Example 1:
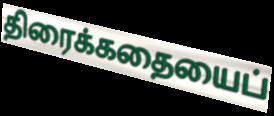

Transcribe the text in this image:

திரைக்கதையைப்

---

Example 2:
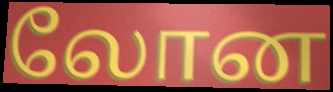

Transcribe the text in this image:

லோன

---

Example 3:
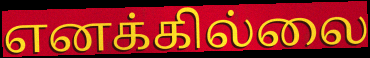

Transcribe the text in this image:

எனக்கில்லை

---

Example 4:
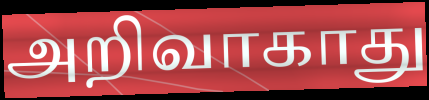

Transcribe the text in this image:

அறிவாகாது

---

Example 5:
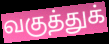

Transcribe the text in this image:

வகுத்துக்